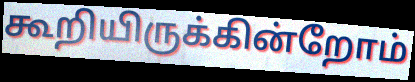
கூறியிருக்கின்றோம்